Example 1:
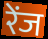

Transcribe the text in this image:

रेंज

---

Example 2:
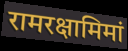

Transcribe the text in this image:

रामरक्षामिमां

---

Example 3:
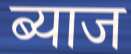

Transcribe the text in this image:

ब्याज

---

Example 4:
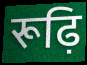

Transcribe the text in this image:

रूढ़ि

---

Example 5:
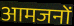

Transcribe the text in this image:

आमजनों